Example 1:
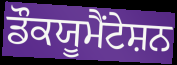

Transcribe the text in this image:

ਡੌਕਯੂਮੈਂਟੇਸ਼ਨ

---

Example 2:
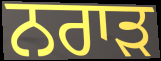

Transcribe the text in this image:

ਨਰਾੜ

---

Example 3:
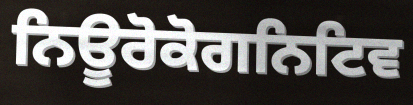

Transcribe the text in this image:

ਨਿਊਰੋਕੋਗਨਿਟਿਵ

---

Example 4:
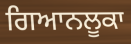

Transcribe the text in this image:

ਗਿਆਨਲੂਕਾ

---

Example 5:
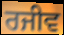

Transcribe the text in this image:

ਰਜੀਵ